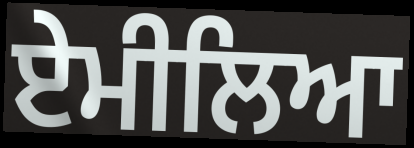
ਏਮੀਲਿਆ